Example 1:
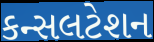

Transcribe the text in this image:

કન્સલટેશન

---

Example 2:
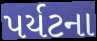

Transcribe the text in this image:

પર્યટના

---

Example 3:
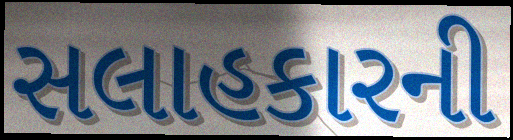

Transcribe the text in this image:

સલાહકારની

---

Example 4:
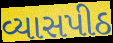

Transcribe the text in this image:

વ્યાસપીઠ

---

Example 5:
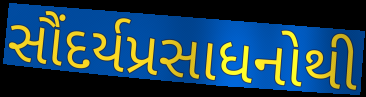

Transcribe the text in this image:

સૌંદર્યપ્રસાધનોથી